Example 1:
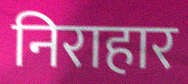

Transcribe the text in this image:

निराहार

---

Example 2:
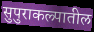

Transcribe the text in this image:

सुपुराकल्पातील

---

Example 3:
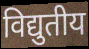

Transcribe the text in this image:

विद्युतीय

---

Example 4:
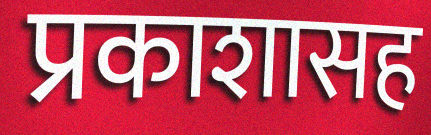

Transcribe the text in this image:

प्रकाशासह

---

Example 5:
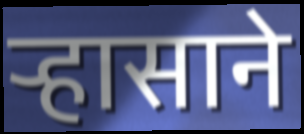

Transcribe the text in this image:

ऱ्हासाने